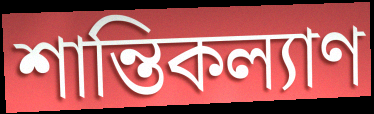
শান্তিকল্যাণ